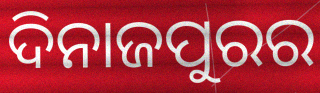
ଦିନାଜପୁରର